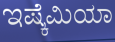
ಇಷ್ಕೆಮಿಯಾ